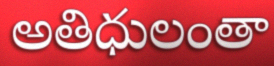
అతిధులంతా